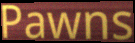
Pawns